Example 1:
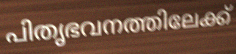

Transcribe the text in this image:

പിതൃഭവനത്തിലേക്ക്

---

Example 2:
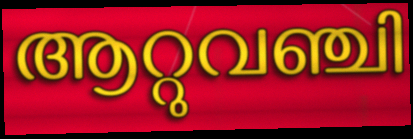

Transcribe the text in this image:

ആറ്റുവഞ്ചി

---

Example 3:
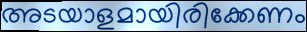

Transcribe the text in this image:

അടയാളമായിരിക്കേണം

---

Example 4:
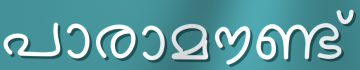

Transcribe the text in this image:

പാരാമൗണ്ട്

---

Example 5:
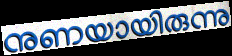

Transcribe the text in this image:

നുണയായിരുന്നു